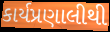
કાર્યપ્રણાલીથી